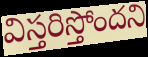
విస్తరిస్తోందని